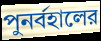
পুনর্বহালের